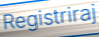
Registriraj